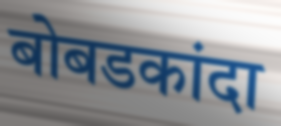
बोबडकांदा